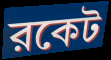
রকেট